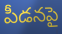
పీడనపై